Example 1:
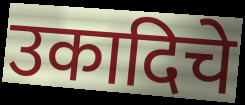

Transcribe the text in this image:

उकादिचे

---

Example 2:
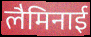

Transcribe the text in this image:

लैमिनाई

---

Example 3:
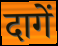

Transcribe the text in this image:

दागें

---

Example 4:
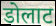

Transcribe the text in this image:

डोलाट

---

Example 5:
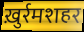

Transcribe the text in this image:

ख़ुर्रमशहर